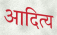
आदित्‍य